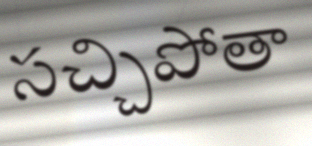
సచ్చిపోతా